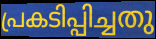
പ്രകടിപ്പിച്ചതു